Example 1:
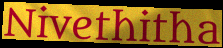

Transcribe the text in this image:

Nivethitha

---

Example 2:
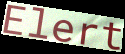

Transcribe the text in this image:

Elert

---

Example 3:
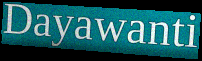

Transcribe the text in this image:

Dayawanti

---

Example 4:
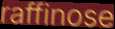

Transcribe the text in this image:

raffinose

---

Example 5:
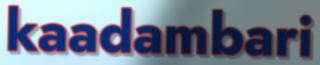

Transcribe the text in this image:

kaadambari